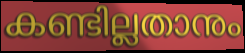
കണ്ടില്ലതാനും